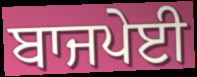
ਬਾਜਪੇਈ